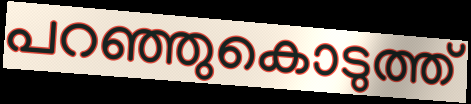
പറഞ്ഞുകൊടുത്ത്